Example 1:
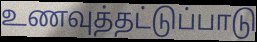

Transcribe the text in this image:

உணவுத்தட்டுப்பாடு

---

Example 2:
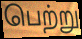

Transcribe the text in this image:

பெற்று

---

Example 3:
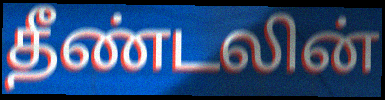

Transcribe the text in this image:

தீண்டலின்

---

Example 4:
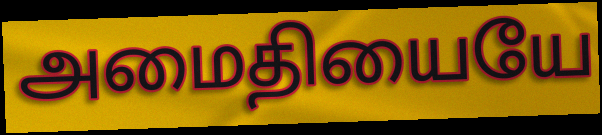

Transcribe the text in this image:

அமைதியையே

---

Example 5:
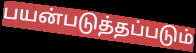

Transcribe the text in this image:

பயன்படுத்தப்படும்